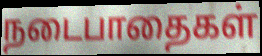
நடைபாதைகள்